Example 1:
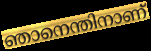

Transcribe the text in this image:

ഞാനെന്തിനാണ്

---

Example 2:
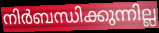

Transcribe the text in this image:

നിർബന്ധിക്കുന്നില്ല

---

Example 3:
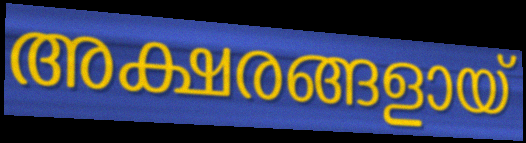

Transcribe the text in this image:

അക്ഷരങ്ങളായ്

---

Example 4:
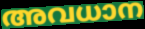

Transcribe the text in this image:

അവധാന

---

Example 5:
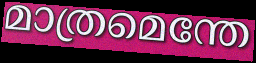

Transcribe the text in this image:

മാത്രമെന്തേ